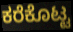
ಕರೆಕೊಟ್ಟ